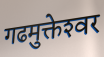
गढमुक्तेश्वर